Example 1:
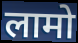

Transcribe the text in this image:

लामो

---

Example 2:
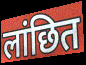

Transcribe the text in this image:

लांछित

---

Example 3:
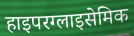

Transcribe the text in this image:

हाइपरग्लाइसेमिक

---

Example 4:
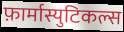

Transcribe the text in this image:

फ़ार्मास्युटिकल्स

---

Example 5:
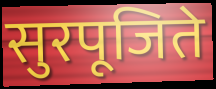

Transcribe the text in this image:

सुरपूजिते